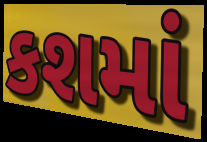
કશમાં